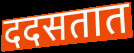
ददसतात